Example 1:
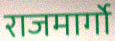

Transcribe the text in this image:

राजमार्गो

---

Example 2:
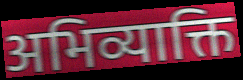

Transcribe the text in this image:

अभिव्याक्ति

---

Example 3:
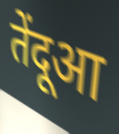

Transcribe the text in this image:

तेंदूआ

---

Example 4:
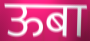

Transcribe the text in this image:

ऊबा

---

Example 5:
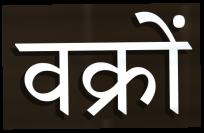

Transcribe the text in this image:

वक्रों